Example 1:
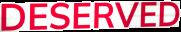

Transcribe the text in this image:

DESERVED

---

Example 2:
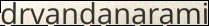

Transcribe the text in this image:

drvandanarami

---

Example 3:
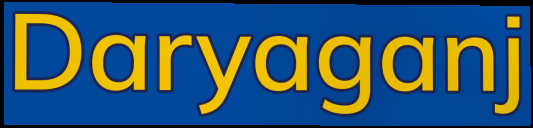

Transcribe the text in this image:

Daryaganj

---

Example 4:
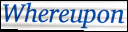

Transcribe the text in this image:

Whereupon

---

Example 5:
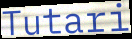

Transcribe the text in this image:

Tutari